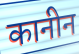
कानीन